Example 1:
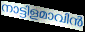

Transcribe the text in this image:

നാട്ടിളമാവിൻ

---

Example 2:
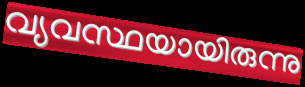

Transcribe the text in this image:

വ്യവസ്ഥയായിരുന്നു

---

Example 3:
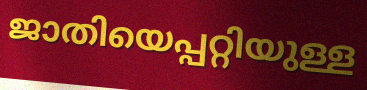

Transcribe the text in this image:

ജാതിയെപ്പറ്റിയുള്ള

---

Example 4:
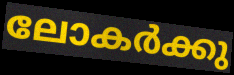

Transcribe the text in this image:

ലോകർക്കു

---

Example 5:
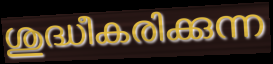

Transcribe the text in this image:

ശുദ്ധീകരിക്കുന്ന